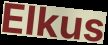
Elkus